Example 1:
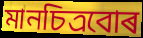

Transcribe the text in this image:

মানচিত্ৰবোৰ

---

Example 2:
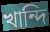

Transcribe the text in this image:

খান্দি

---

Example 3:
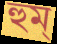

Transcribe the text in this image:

হুম্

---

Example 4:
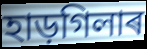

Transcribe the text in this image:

হাড়গিলাৰ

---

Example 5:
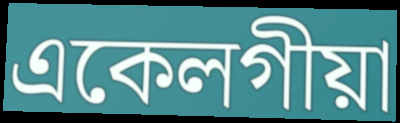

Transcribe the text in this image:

একেলগীয়া